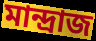
মান্দ্রাজ